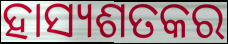
ହାସ୍ୟଶତକର